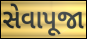
સેવાપૂજા